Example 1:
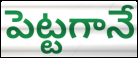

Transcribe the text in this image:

పెట్టగానే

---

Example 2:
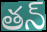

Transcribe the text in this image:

తన్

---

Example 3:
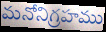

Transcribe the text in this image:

మనోనిగ్రహము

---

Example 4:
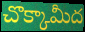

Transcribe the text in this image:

చొక్కామీద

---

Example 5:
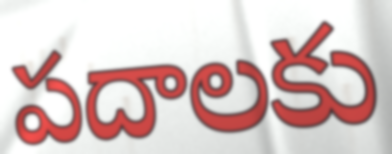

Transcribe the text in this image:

పదాలకు